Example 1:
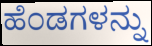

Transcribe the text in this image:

ಹೆಂಡಗಳನ್ನು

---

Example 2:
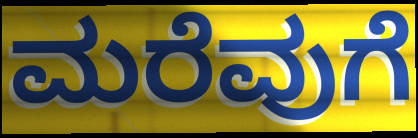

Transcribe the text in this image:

ಮರೆವುಗೆ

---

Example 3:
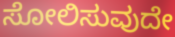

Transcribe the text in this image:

ಸೋಲಿಸುವುದೇ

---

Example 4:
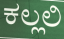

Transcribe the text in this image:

ಕಲ್ಲಲಿ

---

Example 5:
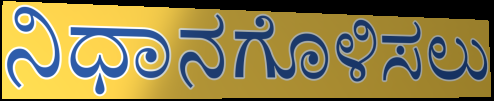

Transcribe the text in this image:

ನಿಧಾನಗೊಳಿಸಲು